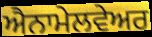
ਐਨਾਮੇਲਵੇਅਰ